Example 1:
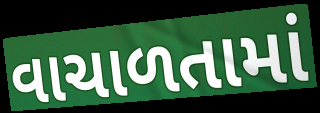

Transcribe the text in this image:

વાચાળતામાં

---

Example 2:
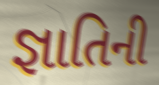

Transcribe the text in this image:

જ્ઞાતિની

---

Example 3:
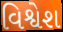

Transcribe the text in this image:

વિશ્વેશ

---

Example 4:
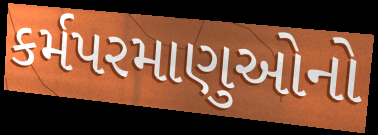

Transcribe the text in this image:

કર્મપરમાણુઓનો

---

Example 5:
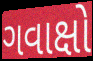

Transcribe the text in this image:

ગવાક્ષો